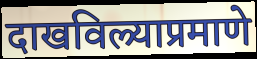
दाखविल्याप्रमाणे